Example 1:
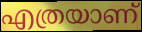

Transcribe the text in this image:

എത്രയാണ്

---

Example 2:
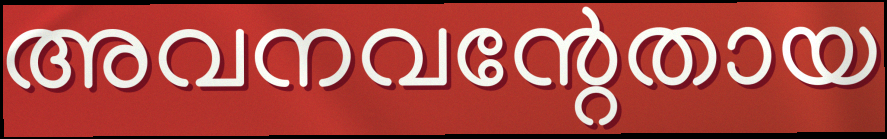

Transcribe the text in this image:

അവനവന്റേതായ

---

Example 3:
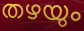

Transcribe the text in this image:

തഴയും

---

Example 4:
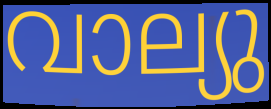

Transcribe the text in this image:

വാല്യു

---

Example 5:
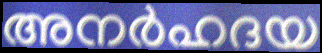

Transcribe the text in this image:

അനർഹദയ